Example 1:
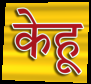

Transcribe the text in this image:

केहू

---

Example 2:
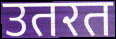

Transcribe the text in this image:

उतरत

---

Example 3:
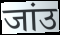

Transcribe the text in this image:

जांउ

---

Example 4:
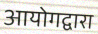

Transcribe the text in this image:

आयोगद्वारा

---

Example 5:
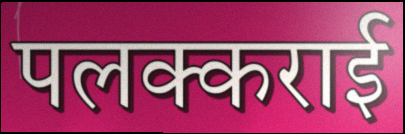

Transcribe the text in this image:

पलक्कराई